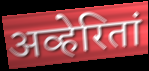
अव्हेरितां